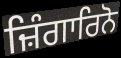
ਜ਼ਿੰਗਾਰਿਨੋ